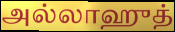
அல்லாஹுத்